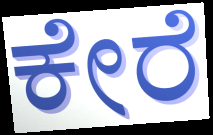
ಕೇರೆ